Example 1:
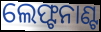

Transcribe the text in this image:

ଲେଫ୍ଟନାଣ୍ଟ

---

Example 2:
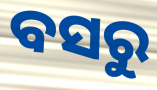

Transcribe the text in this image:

ବସରୁ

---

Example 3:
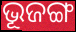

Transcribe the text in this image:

ଭୂଜଙ୍ଗ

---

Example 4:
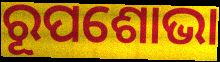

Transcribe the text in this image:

ରୂପଶୋଭା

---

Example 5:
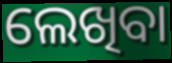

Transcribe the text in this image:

ଲେଖିବା